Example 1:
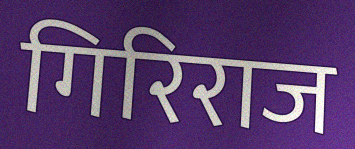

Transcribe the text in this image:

गिरिराज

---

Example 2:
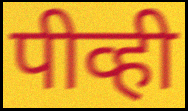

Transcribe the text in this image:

पीव्ही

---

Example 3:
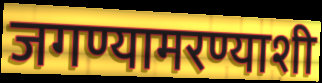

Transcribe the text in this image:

जगण्यामरण्याशी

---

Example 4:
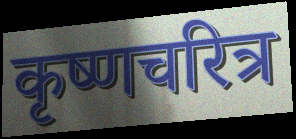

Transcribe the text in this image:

कृष्णचरित्र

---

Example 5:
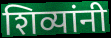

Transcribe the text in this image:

शिव्यांनी